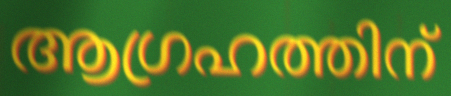
ആഗ്രഹത്തിന്